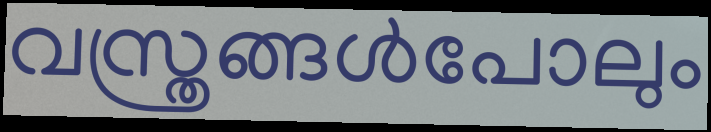
വസ്ത്രങ്ങൾപോലും